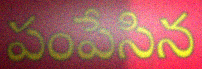
పంపేసిన